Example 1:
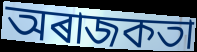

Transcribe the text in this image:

অৰাজকতা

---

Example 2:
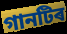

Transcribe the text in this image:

গানটিৰ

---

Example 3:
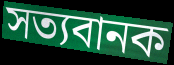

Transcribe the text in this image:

সত্যবানক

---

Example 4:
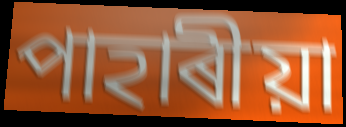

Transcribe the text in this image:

পাহাৰীয়া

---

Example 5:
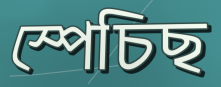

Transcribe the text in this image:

স্পেচিছ